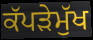
ਕੱਪੜੇਮੁੱਖ